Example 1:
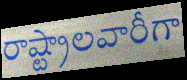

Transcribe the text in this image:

రాష్ట్రాలవారీగా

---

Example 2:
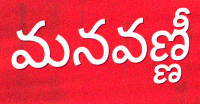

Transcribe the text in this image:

మనవణ్ణీ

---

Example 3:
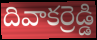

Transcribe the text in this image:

దివాకర్రెడ్డి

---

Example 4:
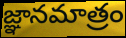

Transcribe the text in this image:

జ్ఞానమాత్రం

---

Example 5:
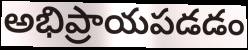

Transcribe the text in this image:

అభిప్రాయపడడం